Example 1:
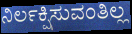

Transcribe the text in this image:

ನಿರ್ಲಕ್ಷಿಸುವಂತಿಲ್ಲ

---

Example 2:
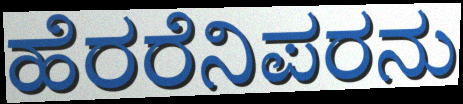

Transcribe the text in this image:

ಹೆರರೆನಿಪರನು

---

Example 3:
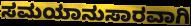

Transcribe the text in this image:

ಸಮಯಾನುಸಾರವಾಗಿ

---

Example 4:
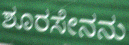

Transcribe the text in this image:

ಶೂರಸೇನನು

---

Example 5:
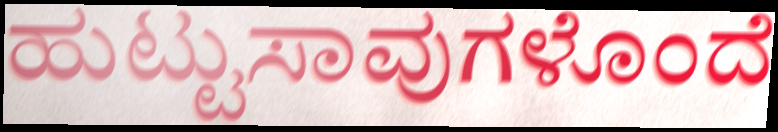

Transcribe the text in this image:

ಹುಟ್ಟುಸಾವುಗಳೊಂದೆ